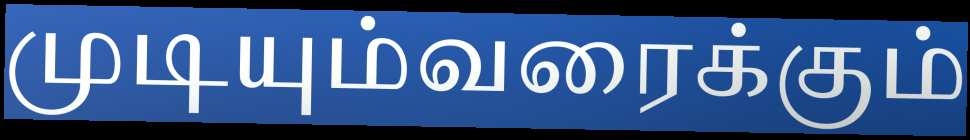
முடியும்வரைக்கும்